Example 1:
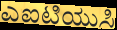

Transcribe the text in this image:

ಎಐಟಿಯುಸಿ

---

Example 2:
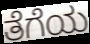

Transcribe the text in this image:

ತೆಗೆಯ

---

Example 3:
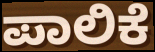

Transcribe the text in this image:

ಪಾಲಿಕೆ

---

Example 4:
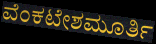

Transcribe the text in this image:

ವೆಂಕಟೇಶಮೂರ್ತಿ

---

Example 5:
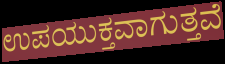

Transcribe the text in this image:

ಉಪಯುಕ್ತವಾಗುತ್ತವೆ